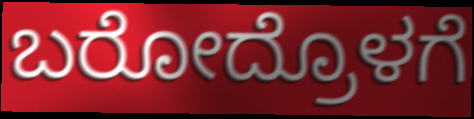
ಬರೋದ್ರೊಳಗೆ